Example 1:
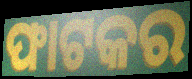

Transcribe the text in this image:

ଫାଟକର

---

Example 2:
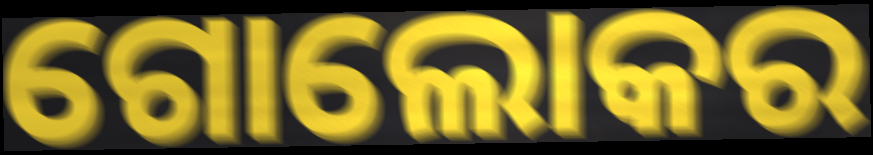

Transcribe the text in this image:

ଗୋଲୋକର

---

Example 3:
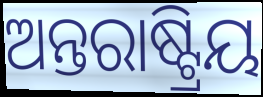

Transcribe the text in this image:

ଅନ୍ତରାଷ୍ଟ୍ରିୟ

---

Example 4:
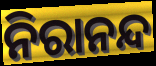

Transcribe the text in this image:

ନିରାନନ୍ଦ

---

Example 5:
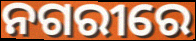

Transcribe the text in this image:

ନଗରୀରେ